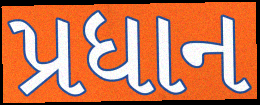
પ્રધાન